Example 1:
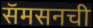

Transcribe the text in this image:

सॅमसनची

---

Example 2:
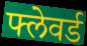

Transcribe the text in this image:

फ्लेवर्ड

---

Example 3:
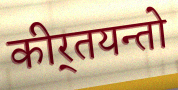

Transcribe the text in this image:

कीर्तयन्तो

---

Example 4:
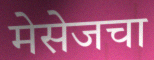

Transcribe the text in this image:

मेसेजचा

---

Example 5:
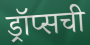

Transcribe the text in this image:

ड्रॉप्सची